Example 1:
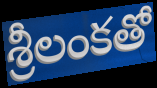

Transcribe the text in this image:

శ్రీలంకతో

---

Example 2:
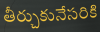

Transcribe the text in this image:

తీర్చుకునేసరికి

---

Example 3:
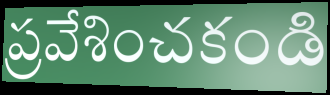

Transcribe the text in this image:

ప్రవేశించకండి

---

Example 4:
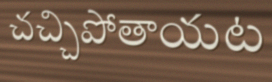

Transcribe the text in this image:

చచ్చిపోతాయట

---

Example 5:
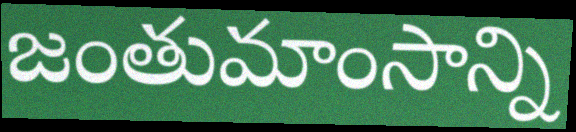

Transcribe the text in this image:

జంతుమాంసాన్ని